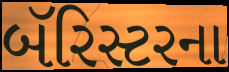
બૅરિસ્ટરના